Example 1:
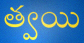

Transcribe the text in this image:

త్వయి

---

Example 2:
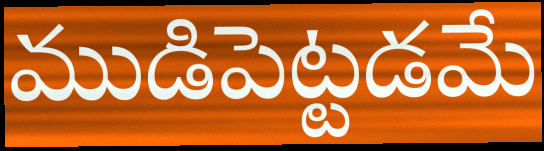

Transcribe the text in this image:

ముడిపెట్టడమే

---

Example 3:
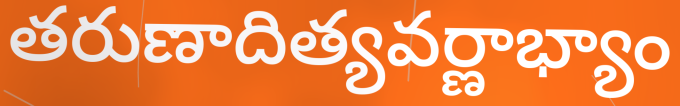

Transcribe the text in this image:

తరుణాదిత్యవర్ణాభ్యాం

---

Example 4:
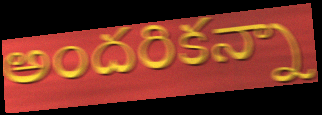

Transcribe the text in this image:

అందరికన్నా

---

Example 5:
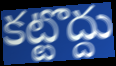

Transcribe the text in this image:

కట్టొద్దు